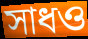
সাধও